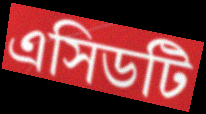
এসিডটি